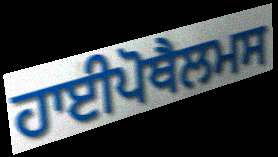
ਹਾਈਪੋਥੈਲਮਸ